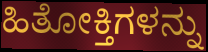
ಹಿತೋಕ್ತಿಗಳನ್ನು